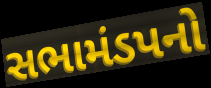
સભામંડપનો